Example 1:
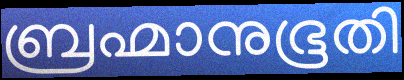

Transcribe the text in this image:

ബ്രഹ്മാനുഭൂതി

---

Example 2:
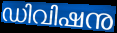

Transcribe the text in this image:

ഡിവിഷനു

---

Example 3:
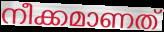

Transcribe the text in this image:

നീക്കമാണത്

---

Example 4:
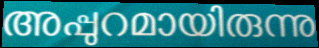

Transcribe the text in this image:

അപ്പുറമായിരുന്നു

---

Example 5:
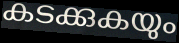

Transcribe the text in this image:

കടക്കുകയും